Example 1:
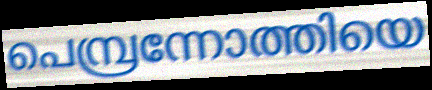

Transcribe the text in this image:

പെമ്പ്രന്നോത്തിയെ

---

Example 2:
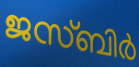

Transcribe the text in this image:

ജസ്ബിർ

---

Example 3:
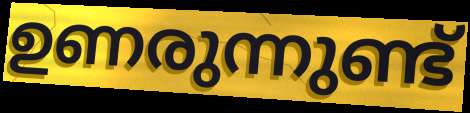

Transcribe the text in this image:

ഉണരുന്നുണ്ട്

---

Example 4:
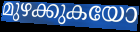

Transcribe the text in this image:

മുഴക്കുകയോ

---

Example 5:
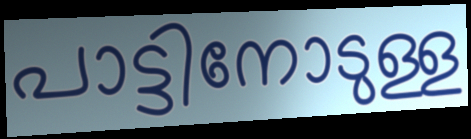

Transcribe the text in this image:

പാട്ടിനോടുള്ള